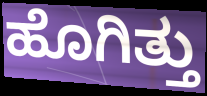
ಹೊಗಿತ್ತು